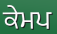
ਕੇਮਪ